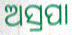
ଅସ୍ରପା